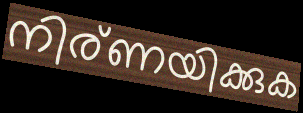
നിര്ണയിക്കുക